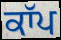
ਕਾੱਪ